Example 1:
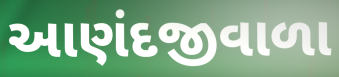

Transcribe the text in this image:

આણંદજીવાળા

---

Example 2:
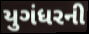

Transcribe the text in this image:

યુગંધરની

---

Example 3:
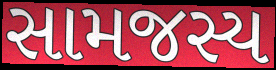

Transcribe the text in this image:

સામજસ્ય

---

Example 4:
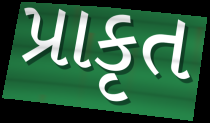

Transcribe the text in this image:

પ્રાકૃત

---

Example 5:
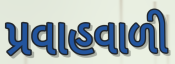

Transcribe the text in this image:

પ્રવાહવાળી